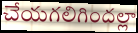
చేయగలిగిందల్లా